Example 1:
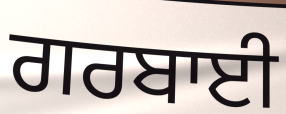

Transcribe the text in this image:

ਗਰਬਾਈ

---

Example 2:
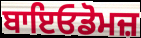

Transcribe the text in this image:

ਬਾਇਓਡੋਮਜ਼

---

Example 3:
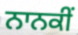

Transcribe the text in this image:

ਨਾਨਕੀਂ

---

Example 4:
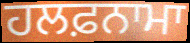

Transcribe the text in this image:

ਹਲਫ਼ਨਾਮਾ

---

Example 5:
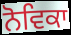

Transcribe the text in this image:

ਨੋਵਿਕਾ